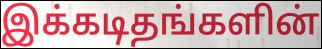
இக்கடிதங்களின்